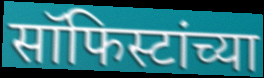
सॉफिस्टांच्या